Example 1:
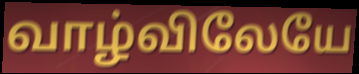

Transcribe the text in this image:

வாழ்விலேயே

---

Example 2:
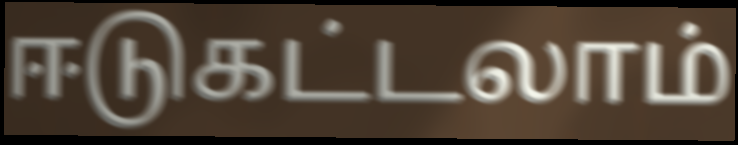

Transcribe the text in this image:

ஈடுகட்டலாம்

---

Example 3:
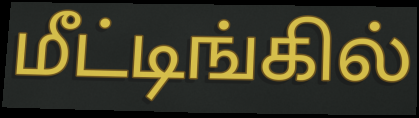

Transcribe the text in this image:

மீட்டிங்கில்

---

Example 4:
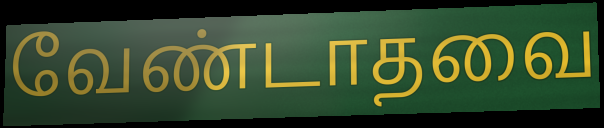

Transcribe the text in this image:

வேண்டாதவை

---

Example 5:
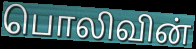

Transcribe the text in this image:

பொலிவின்